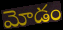
మోడం